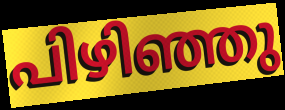
പിഴിഞ്ഞു